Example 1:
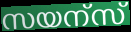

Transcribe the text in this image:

സയന്സ്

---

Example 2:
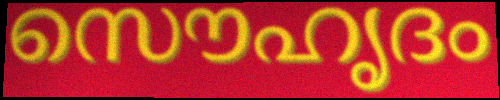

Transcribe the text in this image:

സൌഹൃദം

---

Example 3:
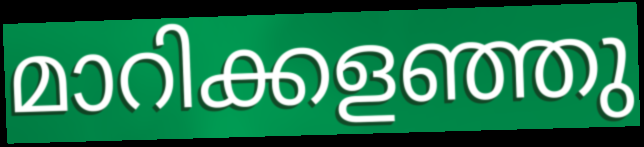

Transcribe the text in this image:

മാറിക്കളഞ്ഞു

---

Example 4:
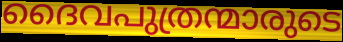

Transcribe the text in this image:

ദൈവപുത്രന്മാരുടെ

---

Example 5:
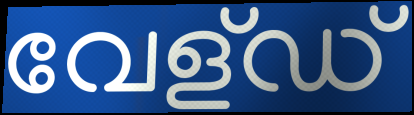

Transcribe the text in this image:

വേള്ഡ്